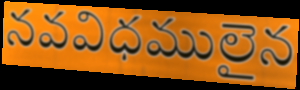
నవవిధములైన